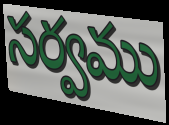
సర్వము